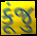
કૂંજુ